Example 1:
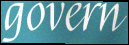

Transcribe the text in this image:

govern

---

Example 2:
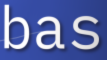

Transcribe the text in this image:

bas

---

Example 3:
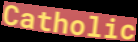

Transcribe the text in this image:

Catholic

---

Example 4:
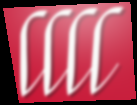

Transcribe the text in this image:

llll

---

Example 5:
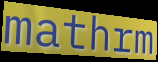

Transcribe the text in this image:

mathrm